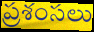
ప్రశంసలు